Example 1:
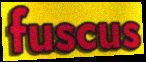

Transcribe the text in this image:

fuscus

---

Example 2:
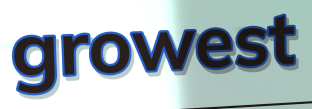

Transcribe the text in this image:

growest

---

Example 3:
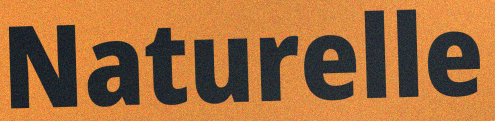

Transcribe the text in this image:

Naturelle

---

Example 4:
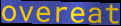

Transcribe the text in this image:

overeat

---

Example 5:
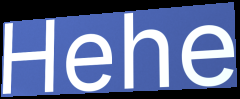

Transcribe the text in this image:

Hehe